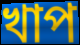
খাপ